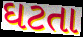
ઘટતા